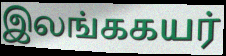
இலங்ககயர்